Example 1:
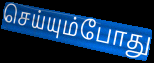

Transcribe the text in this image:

செய்யும்போது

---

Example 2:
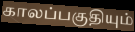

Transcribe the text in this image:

காலப்பகுதியும்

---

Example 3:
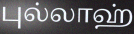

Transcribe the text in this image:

புல்லாஹ்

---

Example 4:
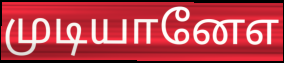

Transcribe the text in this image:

முடியானேஎ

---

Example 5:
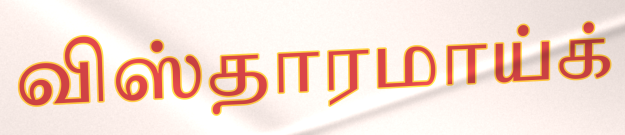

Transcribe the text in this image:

விஸ்தாரமாய்க்